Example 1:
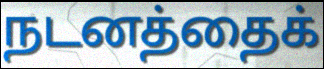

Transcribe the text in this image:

நடனத்தைக்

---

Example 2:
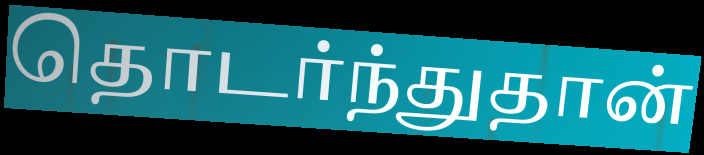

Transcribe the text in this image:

தொடர்ந்துதான்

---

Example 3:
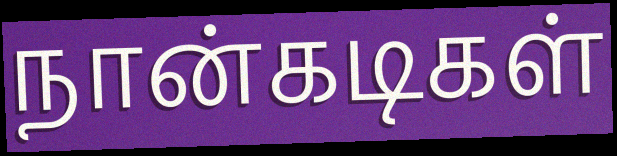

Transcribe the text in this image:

நான்கடிகள்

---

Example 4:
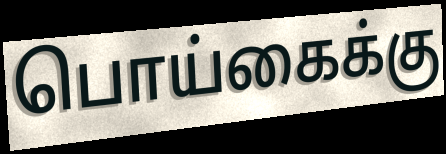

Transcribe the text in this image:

பொய்கைக்கு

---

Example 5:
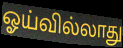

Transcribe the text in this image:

ஓய்வில்லாது